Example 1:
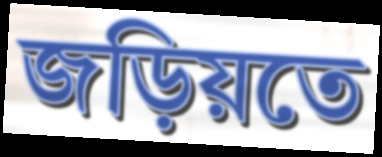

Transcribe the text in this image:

জড়িয়তে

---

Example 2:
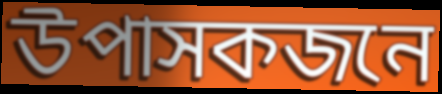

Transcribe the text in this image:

উপাসকজনে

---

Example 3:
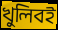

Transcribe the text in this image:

খুলিবই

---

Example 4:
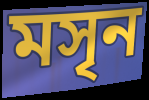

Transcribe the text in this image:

মসৃন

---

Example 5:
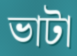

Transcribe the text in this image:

ভাটা